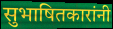
सुभाषितकारांनी